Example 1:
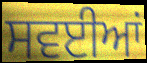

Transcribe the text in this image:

ਸਵਈਆਂ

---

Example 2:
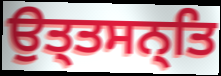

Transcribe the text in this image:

ਉਤ੍ਤਸਨ੍ਤਿ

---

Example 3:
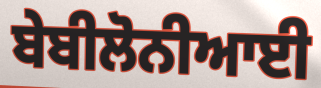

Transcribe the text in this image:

ਬੇਬੀਲੋਨੀਆਈ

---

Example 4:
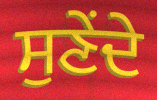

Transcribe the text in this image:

ਸੁਣੇਂਦੇ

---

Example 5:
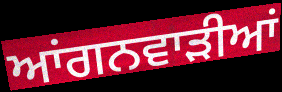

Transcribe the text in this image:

ਆਂਗਨਵਾੜੀਆਂ